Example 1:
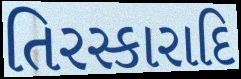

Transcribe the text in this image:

તિરસ્કારાદિ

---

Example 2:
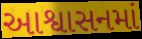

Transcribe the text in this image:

આશ્વાસનમાં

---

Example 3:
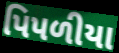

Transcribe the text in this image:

પિપળીયા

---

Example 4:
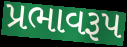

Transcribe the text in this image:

પ્રભાવરૂપ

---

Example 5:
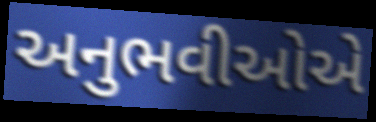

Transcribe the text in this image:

અનુભવીઓએ